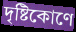
দৃষ্টিকোণে